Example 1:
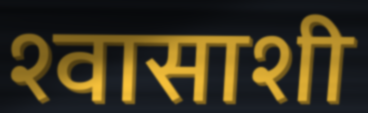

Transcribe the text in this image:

श्वासाशी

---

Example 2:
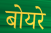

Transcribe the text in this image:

बोयरे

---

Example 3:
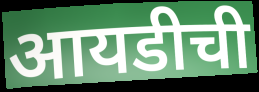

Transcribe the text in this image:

आयडीची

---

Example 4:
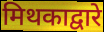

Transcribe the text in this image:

मिथकाद्वारे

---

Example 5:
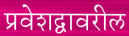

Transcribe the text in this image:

प्रवेशद्वावरील